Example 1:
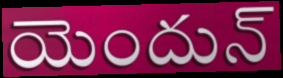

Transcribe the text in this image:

యెందున్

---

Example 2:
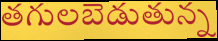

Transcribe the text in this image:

తగులబెడుతున్న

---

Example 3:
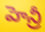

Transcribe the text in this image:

హెన్రీ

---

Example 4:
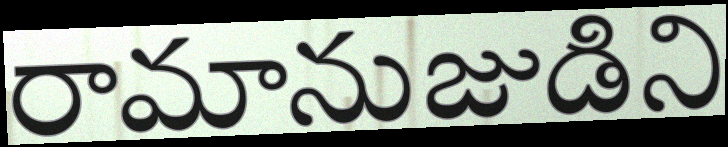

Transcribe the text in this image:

రామానుజుడిని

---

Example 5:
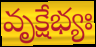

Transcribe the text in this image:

వృక్షేభ్యః